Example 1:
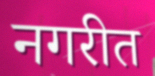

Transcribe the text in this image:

नगरीत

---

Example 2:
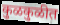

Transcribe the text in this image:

कुळकुळीत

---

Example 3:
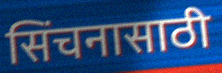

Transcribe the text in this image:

सिंचनासाठी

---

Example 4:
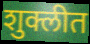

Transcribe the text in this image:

शुक्लीत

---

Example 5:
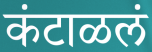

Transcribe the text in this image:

कंटाळलं